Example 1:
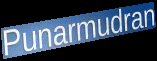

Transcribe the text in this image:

Punarmudran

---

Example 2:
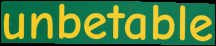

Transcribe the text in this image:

unbetable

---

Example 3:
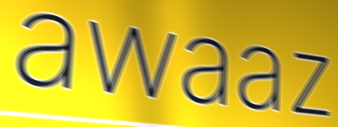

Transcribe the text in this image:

awaaz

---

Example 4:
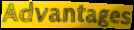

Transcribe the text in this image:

Advantages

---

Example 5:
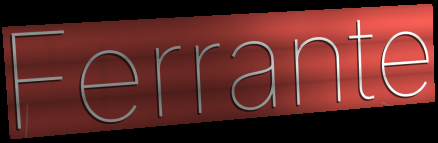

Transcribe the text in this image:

Ferrante